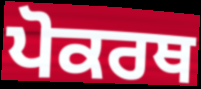
ਪੋਕਰਥ